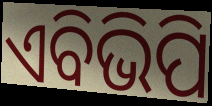
ଏବିଭିପି